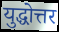
युद्धोत्तर